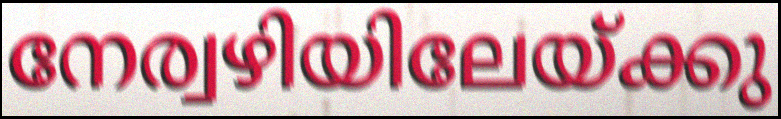
നേര്വഴിയിലേയ്ക്കു